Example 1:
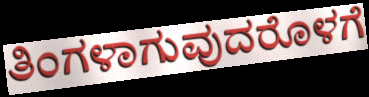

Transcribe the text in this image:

ತಿಂಗಳಾಗುವುದರೊಳಗೆ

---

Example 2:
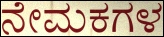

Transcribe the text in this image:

ನೇಮಕಗಳ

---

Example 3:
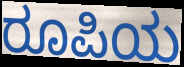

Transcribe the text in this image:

ರೂಪಿಯ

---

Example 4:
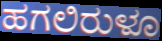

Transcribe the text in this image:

ಹಗಲಿರುಳೂ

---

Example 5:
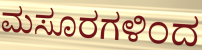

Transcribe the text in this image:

ಮಸೂರಗಳಿಂದ